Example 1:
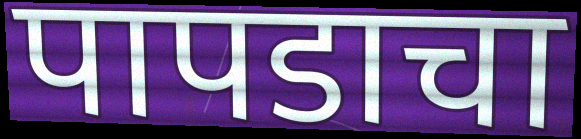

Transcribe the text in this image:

पापडाचा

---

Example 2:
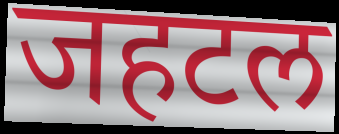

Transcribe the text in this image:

जहटल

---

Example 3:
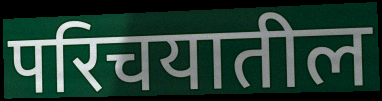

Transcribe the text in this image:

परिचयातील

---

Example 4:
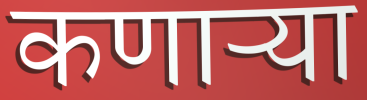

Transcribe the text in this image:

कणाऱ्या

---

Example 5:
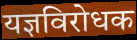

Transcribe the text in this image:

यज्ञविरोधक